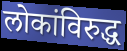
लोकांविरुद्ध